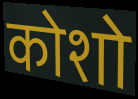
कोशो